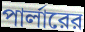
পার্লারের